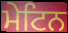
ਮੇਟਿਨ